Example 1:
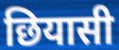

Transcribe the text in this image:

छियासी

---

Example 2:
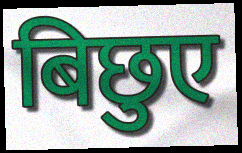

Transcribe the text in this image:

बिछुए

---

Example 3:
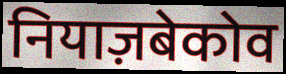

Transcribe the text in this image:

नियाज़बेकोव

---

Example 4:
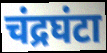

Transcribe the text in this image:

चंद्रघंटा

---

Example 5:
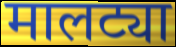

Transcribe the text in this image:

मालट्या